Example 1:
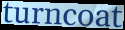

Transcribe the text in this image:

turncoat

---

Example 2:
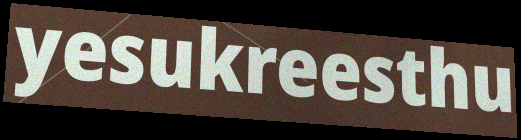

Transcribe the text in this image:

yesukreesthu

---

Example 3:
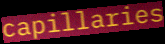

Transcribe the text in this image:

capillaries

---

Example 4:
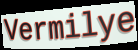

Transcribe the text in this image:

Vermilye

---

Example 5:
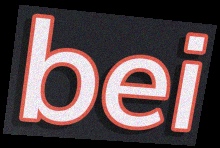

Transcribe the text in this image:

bei